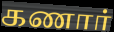
கணார்